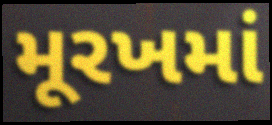
મૂરખમાં